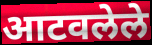
आटवलेले